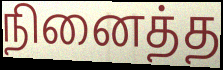
நினைத்த